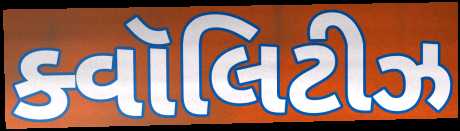
ક્વૉલિટીઝ